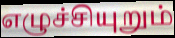
எழுச்சியுறும்